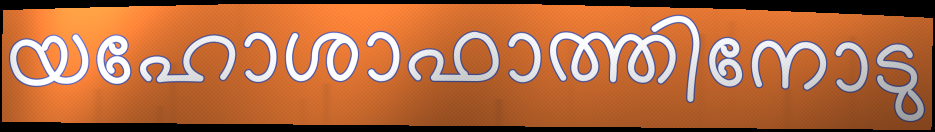
യഹോശാഫാത്തിനോടു